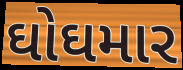
ઘોઘમાર